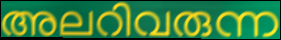
അലറിവരുന്ന